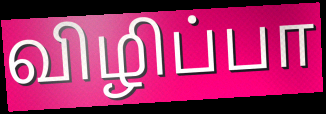
விழிப்பா